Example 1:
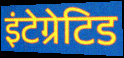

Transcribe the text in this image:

इंटेग्रेटिड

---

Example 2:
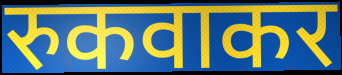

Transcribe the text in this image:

रुकवाकर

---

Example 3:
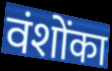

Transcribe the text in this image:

वंशोंका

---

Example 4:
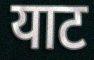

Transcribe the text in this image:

याट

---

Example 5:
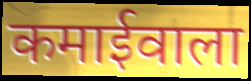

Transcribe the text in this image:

कमाईवाला